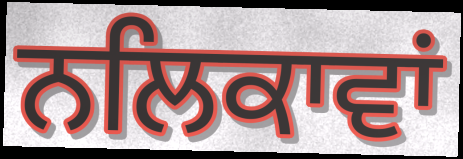
ਨਲਿਕਾਵਾਂ